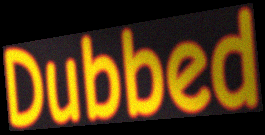
Dubbed